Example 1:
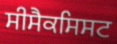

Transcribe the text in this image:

ਸੀਸੈਕਸਿਸਟ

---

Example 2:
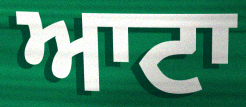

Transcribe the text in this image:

ਆਟਾ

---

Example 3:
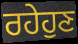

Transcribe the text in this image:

ਰਹੇਹੁਣ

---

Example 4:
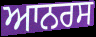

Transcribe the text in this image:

ਆਨਰਸ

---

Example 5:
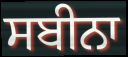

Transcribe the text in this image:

ਸਬੀਨਾ